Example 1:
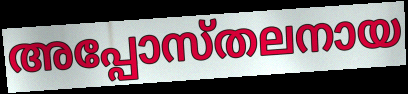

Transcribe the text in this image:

അപ്പോസ്തലനായ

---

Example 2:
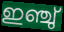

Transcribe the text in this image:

ഇഞ്ചു്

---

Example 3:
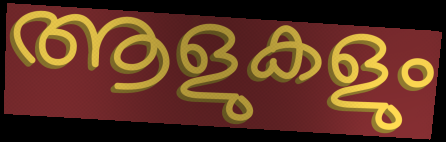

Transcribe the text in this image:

ആളുകളും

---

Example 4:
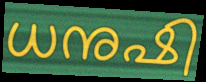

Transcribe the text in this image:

ധനുഷി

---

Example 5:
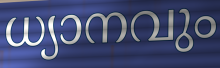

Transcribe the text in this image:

ധ്യാനവും